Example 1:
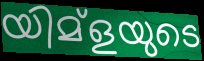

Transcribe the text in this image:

യിമ്ളയുടെ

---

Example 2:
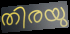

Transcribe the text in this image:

തിരയു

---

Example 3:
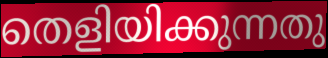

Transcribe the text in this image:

തെളിയിക്കുന്നതു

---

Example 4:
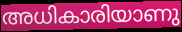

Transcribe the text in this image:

അധികാരിയാണു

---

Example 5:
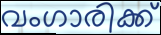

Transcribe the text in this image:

വംഗാരിക്ക്